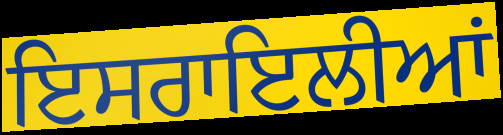
ਇਸਰਾਇਲੀਆਂ